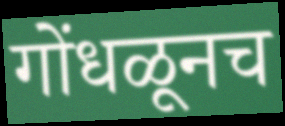
गोंधळूनच